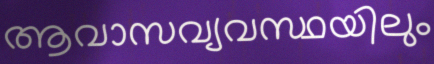
ആവാസവ്യവസ്ഥയിലും